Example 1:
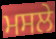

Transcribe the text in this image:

ਮਸਲੇ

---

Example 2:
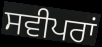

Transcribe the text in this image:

ਸਵੀਪਰਾਂ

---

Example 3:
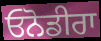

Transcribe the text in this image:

ਓਨੋਡੀਰਾ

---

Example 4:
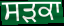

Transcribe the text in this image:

ਸੜਕਾ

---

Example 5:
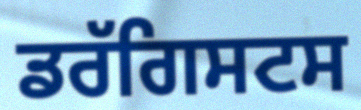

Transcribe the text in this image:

ਡਰੱਗਿਸਟਸ